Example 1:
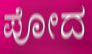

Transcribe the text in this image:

ಪೋದ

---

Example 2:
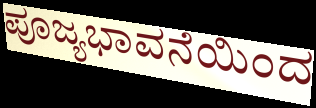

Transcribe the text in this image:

ಪೂಜ್ಯಭಾವನೆಯಿಂದ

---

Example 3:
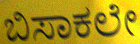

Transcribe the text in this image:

ಬಿಸಾಕಲೇ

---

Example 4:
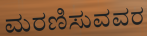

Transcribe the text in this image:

ಮರಣಿಸುವವರ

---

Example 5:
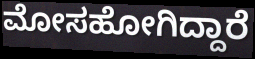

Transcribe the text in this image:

ಮೋಸಹೋಗಿದ್ದಾರೆ